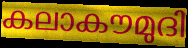
കലാകൗമുദി